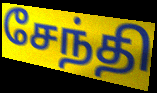
சேந்தி